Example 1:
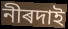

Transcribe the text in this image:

নীৰদাই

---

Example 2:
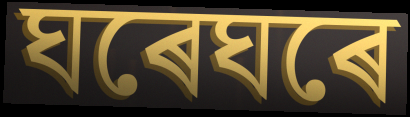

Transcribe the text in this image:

ঘৰেঘৰে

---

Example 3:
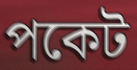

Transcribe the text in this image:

পকেট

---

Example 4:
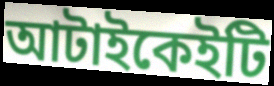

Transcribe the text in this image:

আটাইকেইটি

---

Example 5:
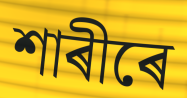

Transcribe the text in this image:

শাৰীৰে